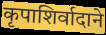
कृपाशिर्वादाने